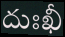
దుఃఖీ